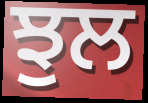
ਝੁਲ